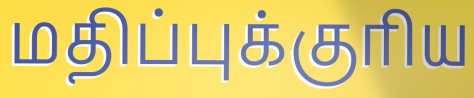
மதிப்புக்குரிய